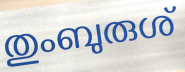
തുംബുരുശ്